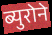
ब्युरोने